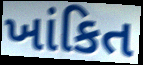
ખાંકિત